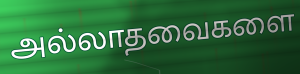
அல்லாதவைகளை